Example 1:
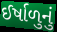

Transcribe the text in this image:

ઈર્ષાળુનું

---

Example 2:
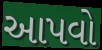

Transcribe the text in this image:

આપવો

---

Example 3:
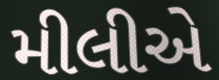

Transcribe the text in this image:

મીલીએ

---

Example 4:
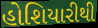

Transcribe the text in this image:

હોશિયારીથી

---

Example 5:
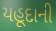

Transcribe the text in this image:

યહૂદાની